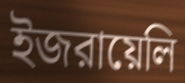
ইজরায়েলি